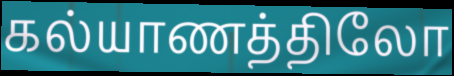
கல்யாணத்திலோ